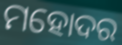
ମହୋଦର